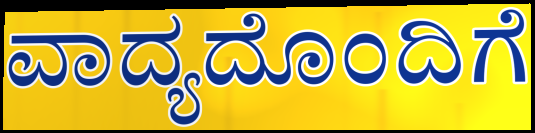
ವಾದ್ಯದೊಂದಿಗೆ